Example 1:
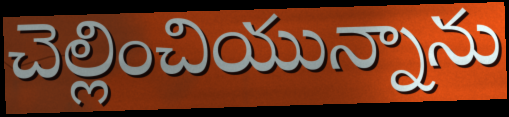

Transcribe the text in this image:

చెల్లించియున్నాను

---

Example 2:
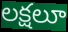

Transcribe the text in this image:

లక్షలూ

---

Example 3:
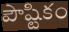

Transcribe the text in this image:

పౌష్టికం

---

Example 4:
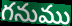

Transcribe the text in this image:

గనుము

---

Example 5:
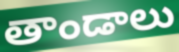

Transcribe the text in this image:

తాండాలు